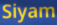
Siyam